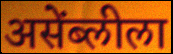
असेंब्लीला